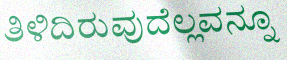
ತಿಳಿದಿರುವುದೆಲ್ಲವನ್ನೂ